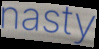
nasty